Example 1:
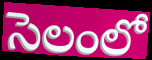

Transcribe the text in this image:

సెలంలో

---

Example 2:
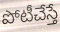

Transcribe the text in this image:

పోటీచేస్తే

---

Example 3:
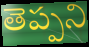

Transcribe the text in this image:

తెప్పని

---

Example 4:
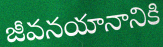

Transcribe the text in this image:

జీవనయానానికి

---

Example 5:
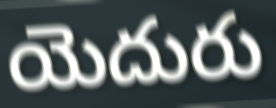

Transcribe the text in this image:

యెదురు